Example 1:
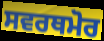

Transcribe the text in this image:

ਸਵਰਥਮੋਰ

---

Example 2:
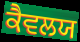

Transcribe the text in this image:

ਕੈਵਲਯ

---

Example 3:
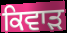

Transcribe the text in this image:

ਕਿਵਾੜ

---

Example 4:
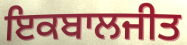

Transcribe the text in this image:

ਇਕਬਾਲਜੀਤ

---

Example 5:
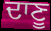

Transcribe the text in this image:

ਦਾਣੂ